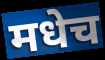
मधेच